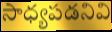
సాధ్యపడనివి